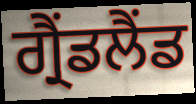
ਗ੍ਰੈਂਡਲੈਂਡ